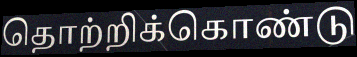
தொற்றிக்கொண்டு